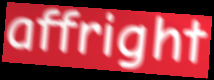
affright